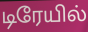
டிரேயில்